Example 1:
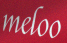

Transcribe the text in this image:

meloo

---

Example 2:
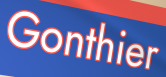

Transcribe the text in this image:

Gonthier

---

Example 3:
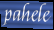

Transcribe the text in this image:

pahele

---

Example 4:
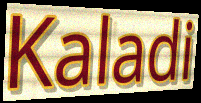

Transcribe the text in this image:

Kaladi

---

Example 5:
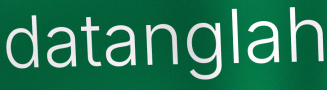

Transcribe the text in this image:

datanglah